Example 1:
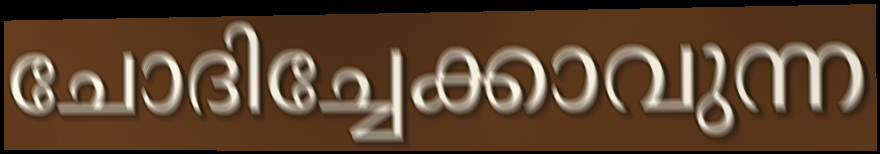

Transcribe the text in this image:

ചോദിച്ചേക്കാവുന്ന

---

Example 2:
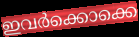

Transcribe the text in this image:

ഇവർക്കൊക്കെ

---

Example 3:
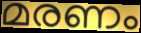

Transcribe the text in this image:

മരണം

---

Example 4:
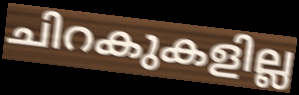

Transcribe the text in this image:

ചിറകുകളില്ല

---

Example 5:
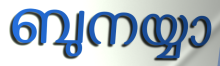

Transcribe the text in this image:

ബുനയ്യാ